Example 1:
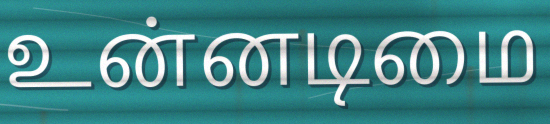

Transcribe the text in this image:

உன்னடிமை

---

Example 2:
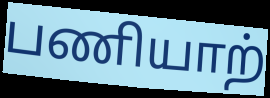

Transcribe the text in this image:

பணியாற்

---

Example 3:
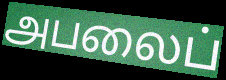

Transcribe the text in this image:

அபலைப்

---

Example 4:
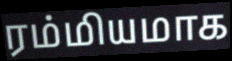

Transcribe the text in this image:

ரம்மியமாக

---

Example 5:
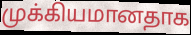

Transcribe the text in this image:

முக்கியமானதாக